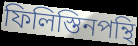
ফিলিস্তিনপন্থি